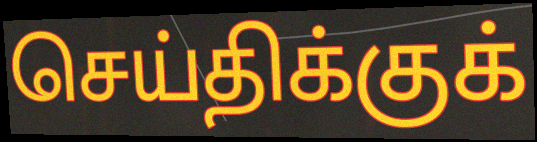
செய்திக்குக்